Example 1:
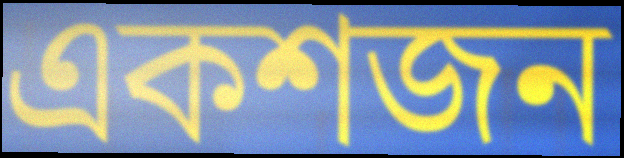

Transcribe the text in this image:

একশজন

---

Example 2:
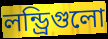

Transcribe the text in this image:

লন্ড্রিগুলো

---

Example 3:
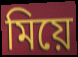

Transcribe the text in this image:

মিয়ে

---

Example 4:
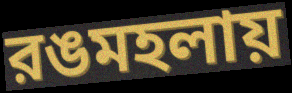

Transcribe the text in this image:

রঙমহলায়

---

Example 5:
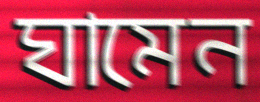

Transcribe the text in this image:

ঘামেন